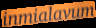
inmialavum